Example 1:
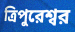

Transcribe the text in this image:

ত্রিপুরেশ্বর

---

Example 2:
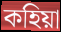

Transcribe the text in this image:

কহিয়া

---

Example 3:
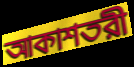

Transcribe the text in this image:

আকাশতরী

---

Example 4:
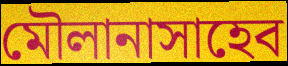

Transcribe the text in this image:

মৌলানাসাহেব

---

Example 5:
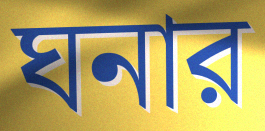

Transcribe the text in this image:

ঘনার